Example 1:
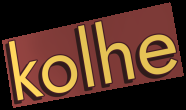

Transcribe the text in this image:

kolhe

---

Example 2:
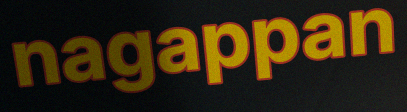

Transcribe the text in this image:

nagappan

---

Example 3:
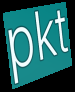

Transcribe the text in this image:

pkt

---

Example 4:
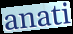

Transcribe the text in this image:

anati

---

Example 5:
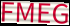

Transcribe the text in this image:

FMEG